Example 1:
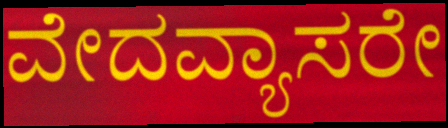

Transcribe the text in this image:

ವೇದವ್ಯಾಸರೇ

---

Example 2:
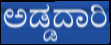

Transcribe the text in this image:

ಅಡ್ಡದಾರಿ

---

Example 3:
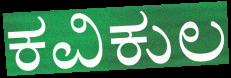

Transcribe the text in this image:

ಕವಿಕುಲ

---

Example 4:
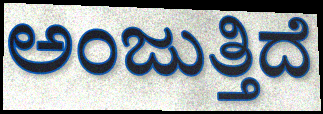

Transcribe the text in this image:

ಅಂಜುತ್ತಿದೆ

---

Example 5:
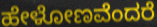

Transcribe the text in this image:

ಹೇಳೋಣವೆಂದರೆ